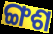
ଙ୍ଗଶ